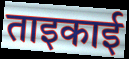
ताइकाई